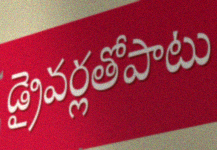
డ్రైవర్లతోపాటు